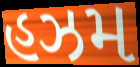
હઝમ